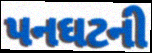
પનઘટની